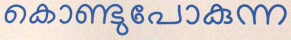
കൊണ്ടുപോകുന്ന